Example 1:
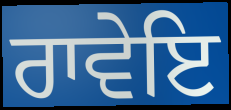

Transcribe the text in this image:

ਰਾਵੇਇ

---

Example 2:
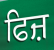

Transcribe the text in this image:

ਫਿਜ਼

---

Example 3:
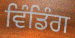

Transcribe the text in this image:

ਵਿੰਡਿੰਗ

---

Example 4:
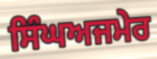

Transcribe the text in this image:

ਸਿੰਘਅਜਮੇਰ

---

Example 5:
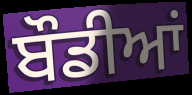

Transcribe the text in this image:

ਬੌਡੀਆਂ